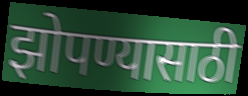
झोपण्यासाठी